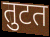
तुटत